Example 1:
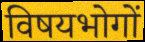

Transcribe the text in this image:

विषयभोगों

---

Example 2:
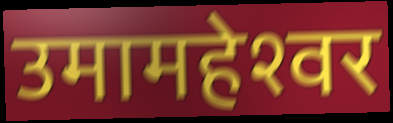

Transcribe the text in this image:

उमामहेश्वर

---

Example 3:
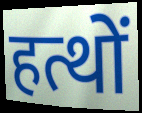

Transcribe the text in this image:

हत्थों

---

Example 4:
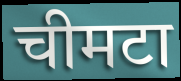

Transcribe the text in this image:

चीमटा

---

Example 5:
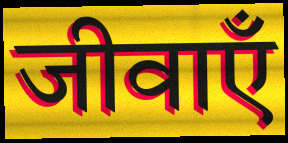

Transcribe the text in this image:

जीवाएँ